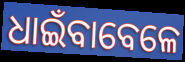
ଧାଇଁବାବେଳେ